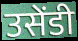
उसेंडी